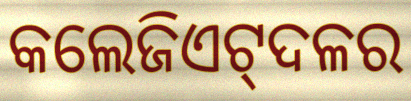
କଲେଜିଏଟ୍‍ଦଳର